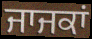
ਜਾਜਕਾਂ